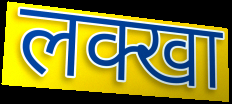
लक्खा